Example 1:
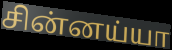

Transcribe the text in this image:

சின்னய்யா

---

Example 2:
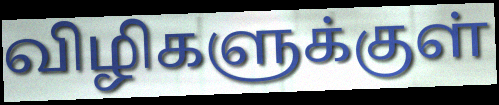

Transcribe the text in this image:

விழிகளுக்குள்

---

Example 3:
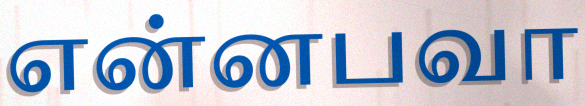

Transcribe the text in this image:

என்னபவா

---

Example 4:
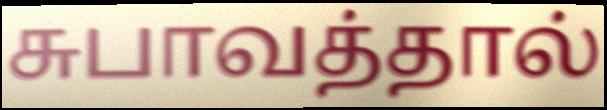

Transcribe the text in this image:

சுபாவத்தால்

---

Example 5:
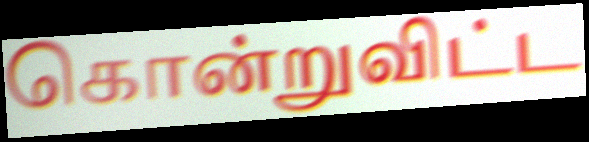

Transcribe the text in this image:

கொன்றுவிட்ட